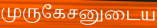
முருகேசனுடைய